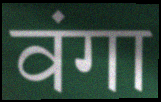
वंगा